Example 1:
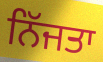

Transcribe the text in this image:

ਨਿੱਜਤਾ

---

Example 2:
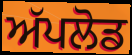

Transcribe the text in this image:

ਅੱਪਲੋਡ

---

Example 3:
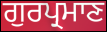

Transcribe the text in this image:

ਗੁਰਪ੍ਰਮਾਣ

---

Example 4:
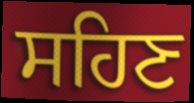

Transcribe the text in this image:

ਸਹਿਣ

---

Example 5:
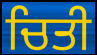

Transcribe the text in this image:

ਚਿਤੀ